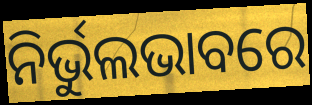
ନିର୍ଭୁଲଭାବରେ